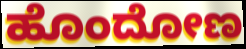
ಹೊಂದೋಣ